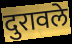
दुरावले